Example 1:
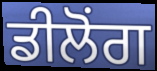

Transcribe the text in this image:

ਡੀਲੋਂਗ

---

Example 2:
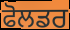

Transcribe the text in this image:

ਫੋਲਡਰ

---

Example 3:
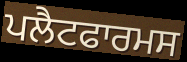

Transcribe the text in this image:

ਪਲੈਟਫਾਰਮਸ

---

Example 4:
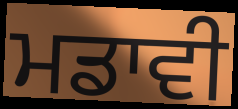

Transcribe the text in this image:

ਮਡਾਵੀ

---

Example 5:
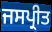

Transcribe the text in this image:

ਜਸਪ੍ਰੀਤ